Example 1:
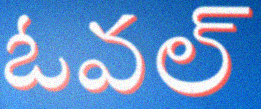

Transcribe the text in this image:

ఓవల్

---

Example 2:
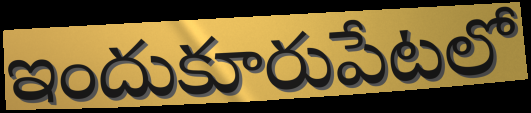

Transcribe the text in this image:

ఇందుకూరుపేటలో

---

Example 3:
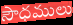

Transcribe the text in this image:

సౌధములు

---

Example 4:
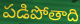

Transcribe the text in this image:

పడిపోతాది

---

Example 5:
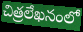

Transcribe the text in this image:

చిత్రలేఖనంలో